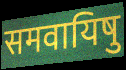
समवायिषु